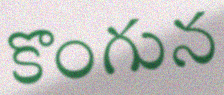
కొంగున